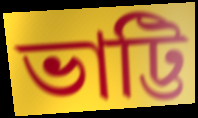
ভাট্টি